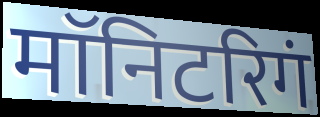
मॉनिटरिगं